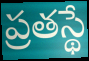
ప్రతస్థే